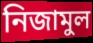
নিজামুল